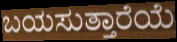
ಬಯಸುತ್ತಾರೆಯೆ